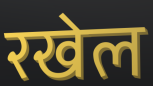
रखेल